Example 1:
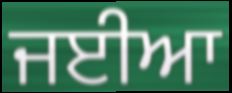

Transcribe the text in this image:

ਜਈਆ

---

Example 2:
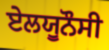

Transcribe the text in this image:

ਏਲਯੂਨੌਸੀ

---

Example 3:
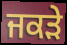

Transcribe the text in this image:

ਜਕੜੇ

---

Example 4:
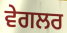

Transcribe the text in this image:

ਵੇਗਲਰ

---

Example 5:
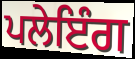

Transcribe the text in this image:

ਪਲੇਇੰਗ